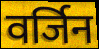
वर्जिन